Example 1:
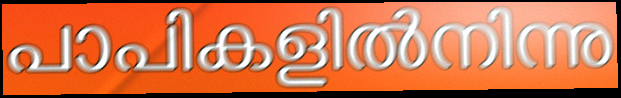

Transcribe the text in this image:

പാപികളിൽനിന്നു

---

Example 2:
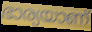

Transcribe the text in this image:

ഭാര്യയാണ്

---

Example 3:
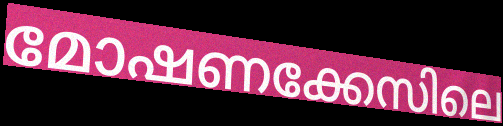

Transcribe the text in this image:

മോഷണക്കേസിലെ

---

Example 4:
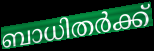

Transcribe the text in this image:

ബാധിതർക്ക്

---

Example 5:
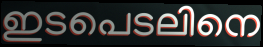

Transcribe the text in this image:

ഇടപെടലിനെ